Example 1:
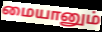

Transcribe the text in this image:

மையானும்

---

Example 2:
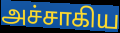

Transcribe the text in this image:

அச்சாகிய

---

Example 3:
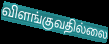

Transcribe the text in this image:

விளங்குவதில்லை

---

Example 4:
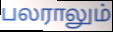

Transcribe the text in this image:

பலராலும்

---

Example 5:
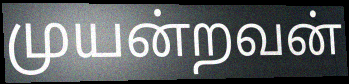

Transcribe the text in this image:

முயன்றவன்